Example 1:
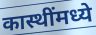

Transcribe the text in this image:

कास्थींमध्ये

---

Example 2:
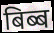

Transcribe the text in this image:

बिब्ब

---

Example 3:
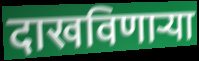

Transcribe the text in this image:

दाखविणाऱ्या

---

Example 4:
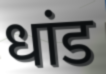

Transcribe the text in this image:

धांड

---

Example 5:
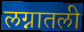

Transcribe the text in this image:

लग्नातली